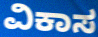
ವಿಕಾಸ